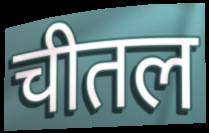
चीतल